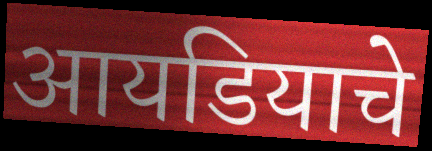
आयडियाचे